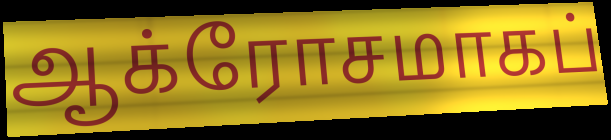
ஆக்ரோசமாகப்